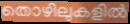
തൊഴിലുകളിൽ